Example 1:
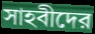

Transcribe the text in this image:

সাহবীদের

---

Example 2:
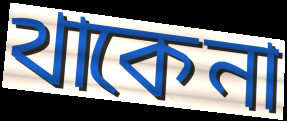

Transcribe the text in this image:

থাকেনা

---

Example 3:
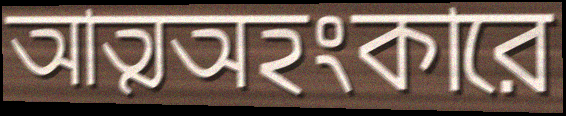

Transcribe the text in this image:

আত্মঅহংকারে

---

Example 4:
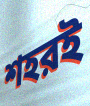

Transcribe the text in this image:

শহরই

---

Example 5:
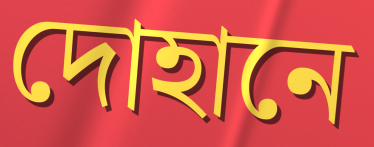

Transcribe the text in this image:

দোহানে